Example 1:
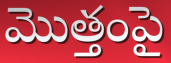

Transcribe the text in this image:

మొత్తంపై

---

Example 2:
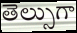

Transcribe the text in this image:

తెల్సుగా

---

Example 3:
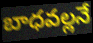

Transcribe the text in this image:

బాధవల్లనే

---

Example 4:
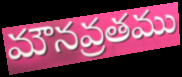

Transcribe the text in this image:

మౌనవ్రతము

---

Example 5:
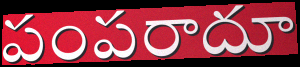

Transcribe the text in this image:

పంపరాదూ